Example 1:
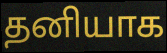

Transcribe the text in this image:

தனியாக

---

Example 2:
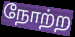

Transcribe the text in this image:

நோற்ற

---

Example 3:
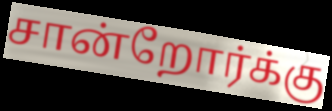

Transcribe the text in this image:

சான்றோர்க்கு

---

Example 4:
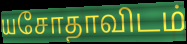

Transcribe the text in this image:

யசோதாவிடம்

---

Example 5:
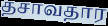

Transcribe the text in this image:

தசாவதார